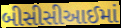
બીસીસીઆઈમાં